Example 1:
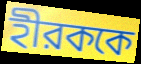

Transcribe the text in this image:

হীরককে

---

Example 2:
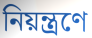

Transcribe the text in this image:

নিয়ন্ত্রণে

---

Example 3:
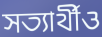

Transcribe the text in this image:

সত্যার্থীও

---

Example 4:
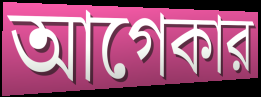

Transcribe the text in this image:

আগেকার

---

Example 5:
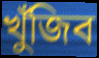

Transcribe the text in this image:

খুঁজিব